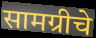
सामग्रीचे